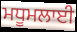
ਮਧੂਮਲਾਈ